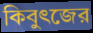
কিবুৎজের